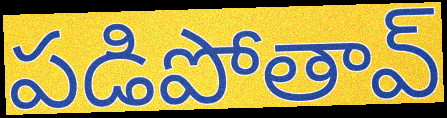
పడిపోతావ్